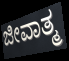
ಜೀವಾತ್ಮ